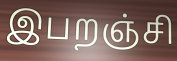
இபறஞ்சி